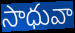
సాధువా